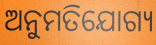
ଅନୁମତିଯୋଗ୍ୟ